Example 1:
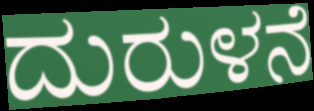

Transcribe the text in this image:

ದುರುಳನೆ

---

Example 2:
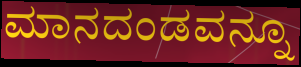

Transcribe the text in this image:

ಮಾನದಂಡವನ್ನೂ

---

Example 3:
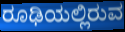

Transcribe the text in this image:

ರೂಢಿಯಲ್ಲಿರುವ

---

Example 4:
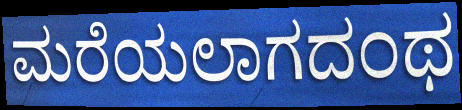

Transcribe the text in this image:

ಮರೆಯಲಾಗದಂಥ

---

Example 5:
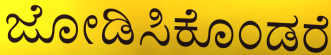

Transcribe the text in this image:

ಜೋಡಿಸಿಕೊಂಡರೆ